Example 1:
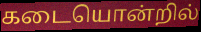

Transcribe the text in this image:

கடையொன்றில்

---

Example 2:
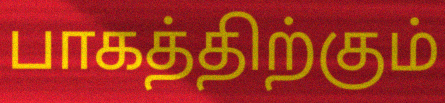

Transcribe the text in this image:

பாகத்திற்கும்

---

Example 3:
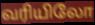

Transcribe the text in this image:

வரியிலோ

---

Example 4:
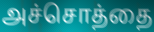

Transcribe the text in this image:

அச்சொத்தை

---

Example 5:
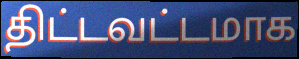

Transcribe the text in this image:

திட்டவட்டமாக